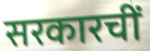
सरकारचीं